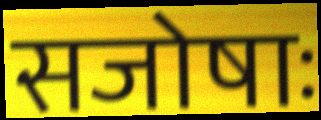
सजोषाः